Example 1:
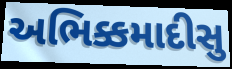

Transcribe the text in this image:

અભિક્કમાદીસુ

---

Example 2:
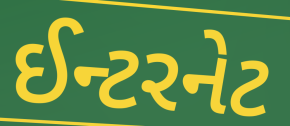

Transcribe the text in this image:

ઈન્ટરનેટ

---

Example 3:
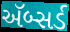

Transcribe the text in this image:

ઍબ્સર્ડ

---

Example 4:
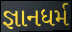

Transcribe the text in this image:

જ્ઞાનધર્મ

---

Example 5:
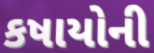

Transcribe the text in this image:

કષાયોની